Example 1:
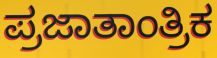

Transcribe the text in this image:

ಪ್ರಜಾತಾಂತ್ರಿಕ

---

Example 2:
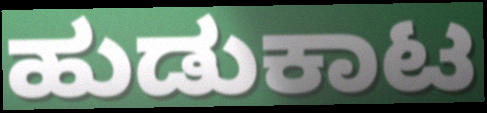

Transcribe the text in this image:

ಹುಡುಕಾಟ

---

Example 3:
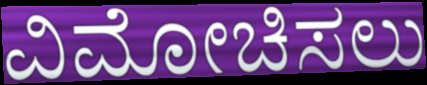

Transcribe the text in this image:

ವಿಮೋಚಿಸಲು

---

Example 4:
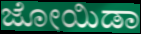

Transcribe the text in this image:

ಜೋಯಿಡಾ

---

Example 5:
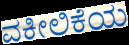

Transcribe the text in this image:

ವಕೀಲಿಕೆಯ